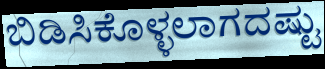
ಬಿಡಿಸಿಕೊಳ್ಳಲಾಗದಷ್ಟು